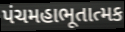
પંચમહાભૂતાત્મક